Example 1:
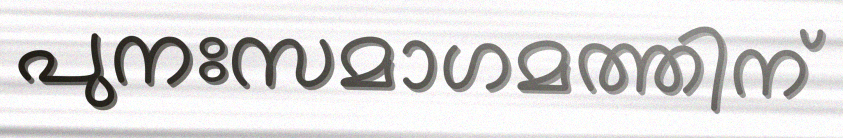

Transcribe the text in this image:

പുനഃസമാഗമത്തിന്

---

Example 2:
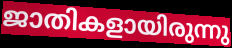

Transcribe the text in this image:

ജാതികളായിരുന്നു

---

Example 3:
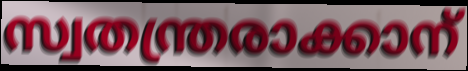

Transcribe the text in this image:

സ്വതന്ത്രരാക്കാന്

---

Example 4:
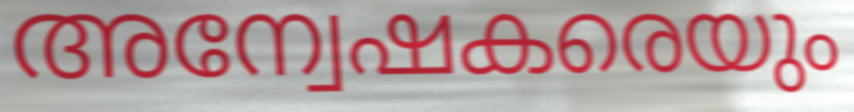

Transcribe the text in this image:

അന്വേഷകരെയും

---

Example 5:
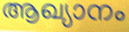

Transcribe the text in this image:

ആഖ്യാനം